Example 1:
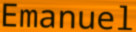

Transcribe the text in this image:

Emanuel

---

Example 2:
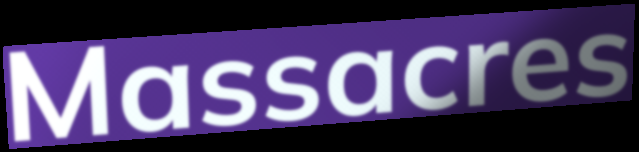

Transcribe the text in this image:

Massacres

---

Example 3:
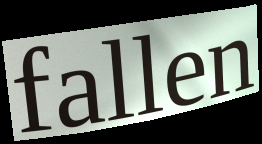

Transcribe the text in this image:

fallen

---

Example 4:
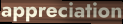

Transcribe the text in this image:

appreciation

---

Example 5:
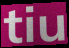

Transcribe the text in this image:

tiu